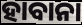
ହାବାନା